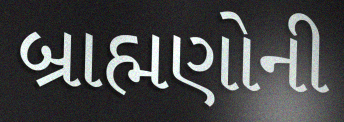
બ્રાહ્મણોની